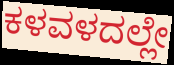
ಕಳವಳದಲ್ಲೇ